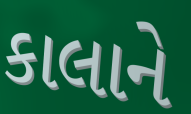
કાલાને